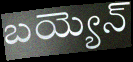
బయ్యెన్